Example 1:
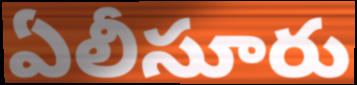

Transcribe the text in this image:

ఏలీసూరు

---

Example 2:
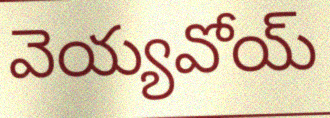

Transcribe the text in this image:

వెయ్యవోయ్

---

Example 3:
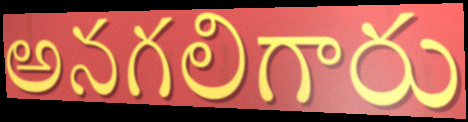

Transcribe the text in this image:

అనగలిగారు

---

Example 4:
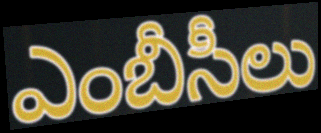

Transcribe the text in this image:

ఎంబీసీలు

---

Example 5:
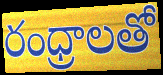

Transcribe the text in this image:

రంధ్రాలతో